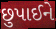
છુપાઈને